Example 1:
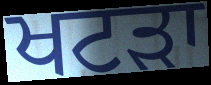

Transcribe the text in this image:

ਖਟੜਾ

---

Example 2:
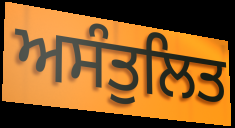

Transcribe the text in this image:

ਅਸੰਤੁਲਿਤ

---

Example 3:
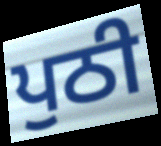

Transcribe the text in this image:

ਪੁਠੀ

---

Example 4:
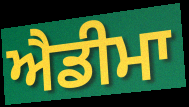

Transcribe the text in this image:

ਐਡੀਮਾ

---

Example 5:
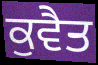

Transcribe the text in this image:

ਕੁਵੈਤ